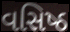
વસિષ્‍ઠ